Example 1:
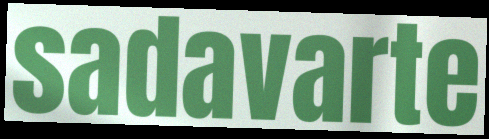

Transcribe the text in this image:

sadavarte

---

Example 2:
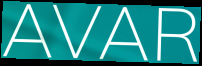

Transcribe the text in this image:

AVAR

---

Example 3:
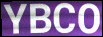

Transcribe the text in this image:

YBCO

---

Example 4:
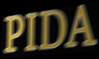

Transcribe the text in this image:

PIDA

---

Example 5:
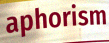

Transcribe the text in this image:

aphorism